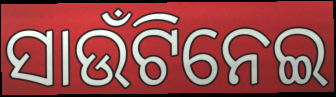
ସାଉଁଟିନେଇ